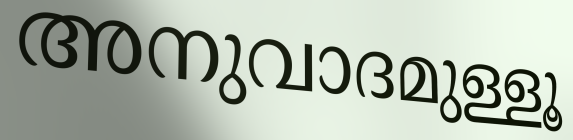
അനുവാദമുള്ളൂ